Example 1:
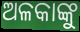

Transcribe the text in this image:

ଅଳକାଙ୍କୁ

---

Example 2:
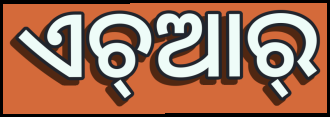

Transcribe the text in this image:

ଏଚ୍ଆର୍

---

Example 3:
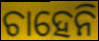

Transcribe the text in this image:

ଚାହେନି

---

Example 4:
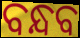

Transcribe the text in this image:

ବନ୍ଧବ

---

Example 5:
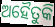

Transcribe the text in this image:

ଅହୈତୁକି